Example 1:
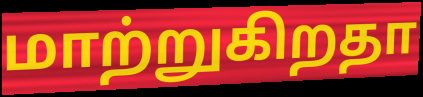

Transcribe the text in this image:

மாற்றுகிறதா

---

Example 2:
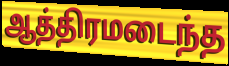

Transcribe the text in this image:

ஆத்திரமடைந்த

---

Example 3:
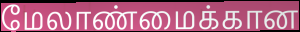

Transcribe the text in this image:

மேலாண்மைக்கான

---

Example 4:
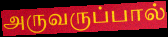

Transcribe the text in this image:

அருவருப்பால்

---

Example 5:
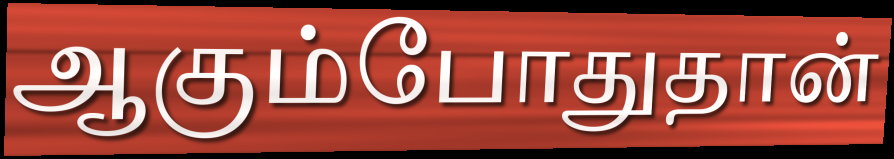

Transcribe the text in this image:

ஆகும்போதுதான்